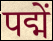
पद्में